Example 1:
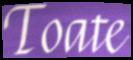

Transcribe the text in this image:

Toate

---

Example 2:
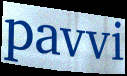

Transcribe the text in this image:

pavvi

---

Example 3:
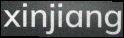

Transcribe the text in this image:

xinjiang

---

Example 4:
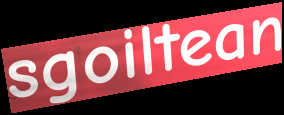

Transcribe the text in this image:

sgoiltean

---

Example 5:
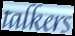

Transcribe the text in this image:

talkers